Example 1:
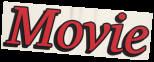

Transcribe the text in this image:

Movie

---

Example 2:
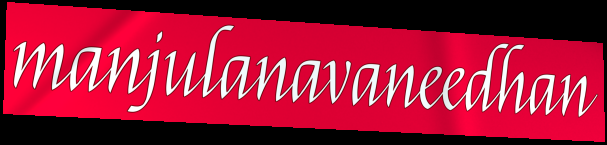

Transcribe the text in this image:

manjulanavaneedhan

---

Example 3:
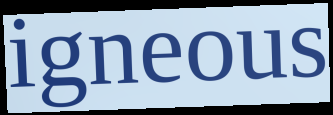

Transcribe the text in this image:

igneous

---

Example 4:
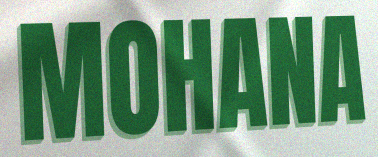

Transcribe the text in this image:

MOHANA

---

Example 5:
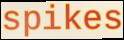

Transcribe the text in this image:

spikes